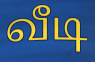
வீடி